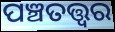
ପଞ୍ଚତତ୍ତ୍ୱର